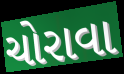
ચોરાવા